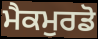
ਮੈਕਮੁਰਡੋ